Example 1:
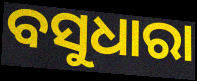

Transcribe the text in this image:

ବସୁଧାରା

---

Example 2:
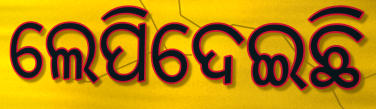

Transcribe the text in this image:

ଲେପିଦେଇଛି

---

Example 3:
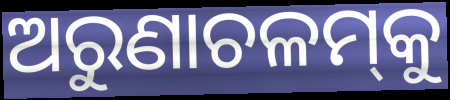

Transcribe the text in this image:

ଅରୁଣାଚଳମ୍‌କୁ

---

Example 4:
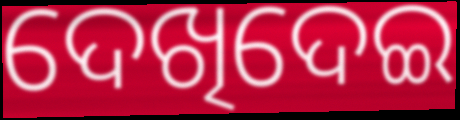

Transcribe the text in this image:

ଦେଖିଦେଇ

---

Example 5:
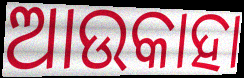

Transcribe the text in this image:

ଆଉକାହା